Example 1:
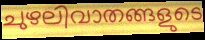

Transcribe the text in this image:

ചുഴലിവാതങ്ങളുടെ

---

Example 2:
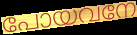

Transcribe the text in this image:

പോയവനേ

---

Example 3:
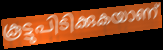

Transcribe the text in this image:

കൂട്ടുപിടിക്കുകയാണ്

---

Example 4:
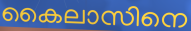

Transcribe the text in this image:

കൈലാസിനെ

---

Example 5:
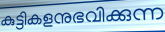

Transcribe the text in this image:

കുട്ടികളനുഭവിക്കുന്ന